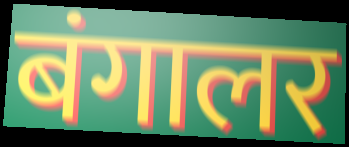
बंगालर